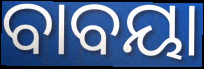
ବାବୟା